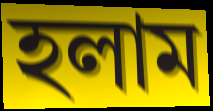
হলাম